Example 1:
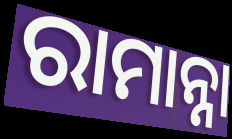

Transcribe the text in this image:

ରାମାନ୍ନା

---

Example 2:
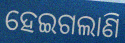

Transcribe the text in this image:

ହେଇଗଲାଣି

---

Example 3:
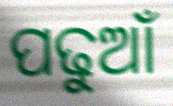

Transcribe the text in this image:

ପଢୁଆଁ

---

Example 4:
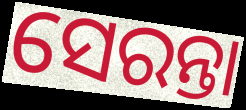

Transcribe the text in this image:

ସେରନ୍ତା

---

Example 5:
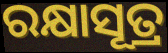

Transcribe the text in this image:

ରକ୍ଷାସୂତ୍ର